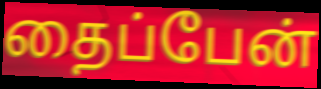
தைப்பேன்